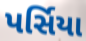
પર્સિયા